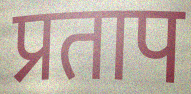
प्रताप